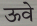
ऊवे